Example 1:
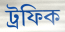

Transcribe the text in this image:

ট্রফিক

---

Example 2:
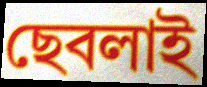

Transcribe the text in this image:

ছেবলাই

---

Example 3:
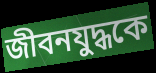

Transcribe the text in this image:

জীবনযুদ্ধকে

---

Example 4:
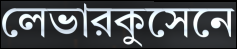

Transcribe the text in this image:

লেভারকুসেনে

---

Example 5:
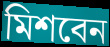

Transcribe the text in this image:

মিশবেন